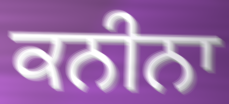
ਕਨੀਨਾ